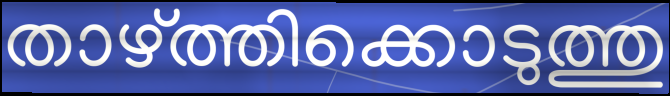
താഴ്ത്തിക്കൊടുത്തു